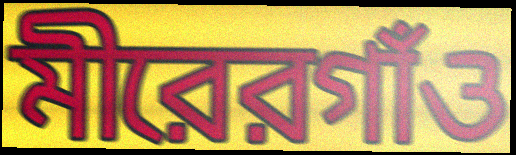
মীরেরগাঁও